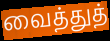
வைத்துத்